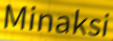
Minaksi